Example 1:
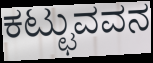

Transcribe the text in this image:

ಕಟ್ಟುವವನ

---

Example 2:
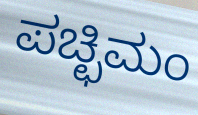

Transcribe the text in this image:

ಪಚ್ಛಿಮಂ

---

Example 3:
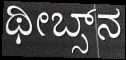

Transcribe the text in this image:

ಥೀಬ್ಸ್‌ನ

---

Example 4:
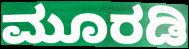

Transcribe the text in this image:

ಮೂರಡಿ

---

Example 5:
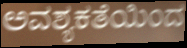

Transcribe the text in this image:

ಅವಶ್ಯಕತೆಯಿಂದ